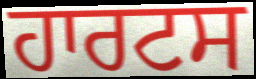
ਹਾਰਟਸ